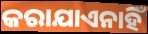
କରାଯାଏନାହିଁ